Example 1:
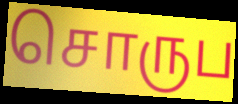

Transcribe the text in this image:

சொருப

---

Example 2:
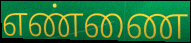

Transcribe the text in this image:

எண்ணை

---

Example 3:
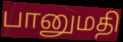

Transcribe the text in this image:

பானுமதி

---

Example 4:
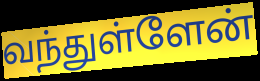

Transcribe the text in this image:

வந்துள்ளேன்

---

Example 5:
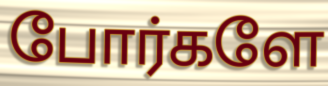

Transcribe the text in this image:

போர்களே